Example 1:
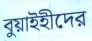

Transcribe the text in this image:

বুয়াইহীদের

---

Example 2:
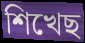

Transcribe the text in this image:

শিখেছ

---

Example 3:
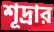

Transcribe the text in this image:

শূদ্রার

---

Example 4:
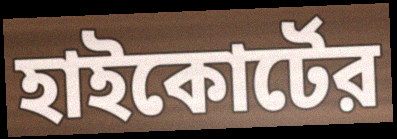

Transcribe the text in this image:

হাইকোর্টের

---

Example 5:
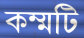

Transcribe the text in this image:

কম্মটি